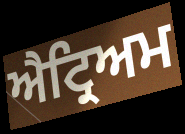
ਐਟ੍ਰਿਅਮ